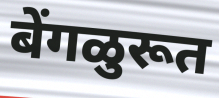
बेंगळुरूत